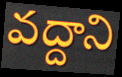
వద్దాని